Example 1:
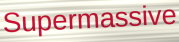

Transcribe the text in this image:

Supermassive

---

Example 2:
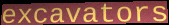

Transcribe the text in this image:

excavators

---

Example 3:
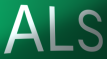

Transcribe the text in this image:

ALS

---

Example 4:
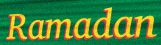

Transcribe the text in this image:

Ramadan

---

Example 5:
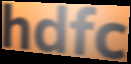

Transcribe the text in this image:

hdfc